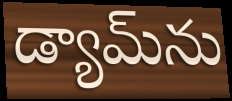
డ్యామ్‌ను